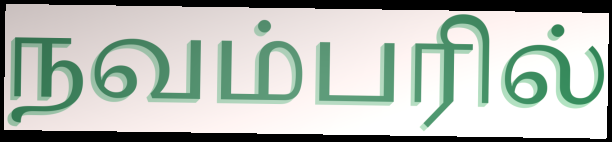
நவம்பரில்